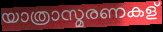
യാത്രാസ്മരണകള്